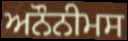
ਅਨੌਨੀਮਸ